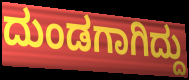
ದುಂಡಗಾಗಿದ್ದು